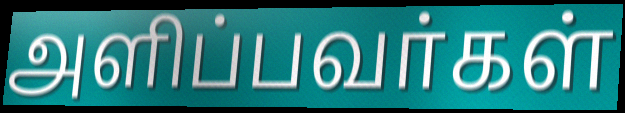
அளிப்பவர்கள்